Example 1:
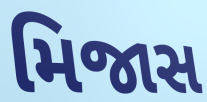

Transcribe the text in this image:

મિજાસ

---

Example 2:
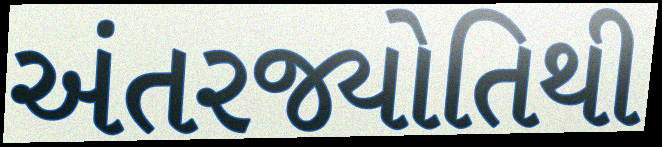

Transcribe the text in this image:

અંતરજ્યોતિથી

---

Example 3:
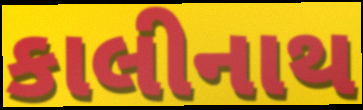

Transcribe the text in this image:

કાલીનાથ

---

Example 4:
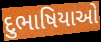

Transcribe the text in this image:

દુભાષિયાઓ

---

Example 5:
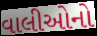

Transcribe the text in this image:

વાલીઓનો